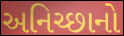
અનિચ્છાનો